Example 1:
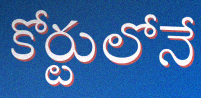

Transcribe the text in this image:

కోర్టులోనే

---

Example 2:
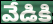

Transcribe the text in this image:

వేడికి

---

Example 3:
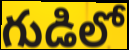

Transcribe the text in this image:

గుడిలో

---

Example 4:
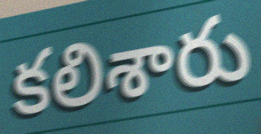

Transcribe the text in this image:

కలిశారు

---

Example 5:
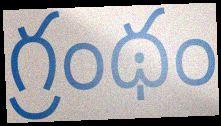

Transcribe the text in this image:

గ్రంథం